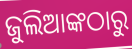
ଜୁଲିଆଙ୍କଠାରୁ